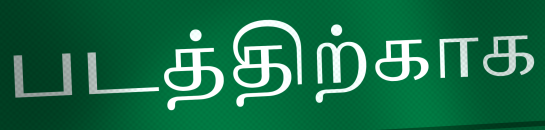
படத்திற்காக